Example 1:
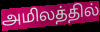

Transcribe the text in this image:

அமிலத்தில்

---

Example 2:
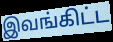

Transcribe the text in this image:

இவங்கிட்ட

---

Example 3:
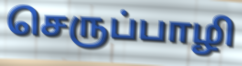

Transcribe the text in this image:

செருப்பாழி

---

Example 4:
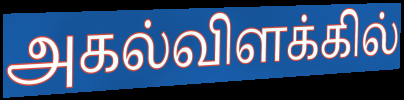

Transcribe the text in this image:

அகல்விளக்கில்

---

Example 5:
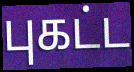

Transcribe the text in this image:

புகட்ட